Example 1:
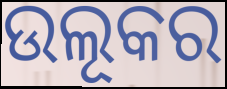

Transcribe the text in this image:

ଉଲୂକର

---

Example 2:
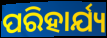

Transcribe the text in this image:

ପରିହାର୍ଯ୍ୟ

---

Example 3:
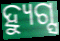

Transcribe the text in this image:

ହ୍ୟୁଗ୍ସ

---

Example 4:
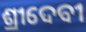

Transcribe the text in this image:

ଶ୍ରୀଦେବୀ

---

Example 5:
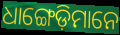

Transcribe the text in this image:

ଧାଙ୍ଗେଡ଼ିମାନେ